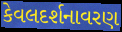
કેવલદર્શનાવરણ